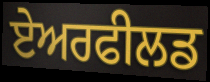
ਏਅਰਫੀਲਡ